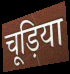
चूड़िया